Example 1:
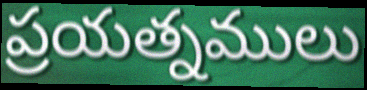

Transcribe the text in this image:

ప్రయత్నములు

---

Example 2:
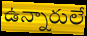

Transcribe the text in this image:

ఉన్నారులే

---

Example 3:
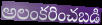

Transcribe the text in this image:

అలంకరించబడి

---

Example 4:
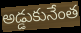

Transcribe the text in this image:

అడ్డుకునేంత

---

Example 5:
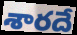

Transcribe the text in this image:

శారదే